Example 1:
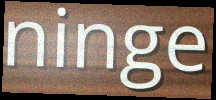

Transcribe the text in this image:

ninge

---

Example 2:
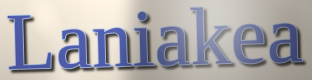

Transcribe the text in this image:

Laniakea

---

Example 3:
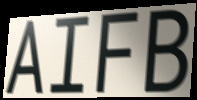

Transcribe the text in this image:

AIFB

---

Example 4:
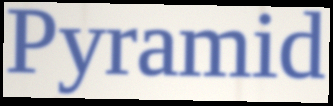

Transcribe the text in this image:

Pyramid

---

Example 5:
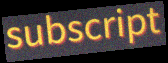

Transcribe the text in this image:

subscript